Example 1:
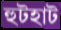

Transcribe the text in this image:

হুটহাট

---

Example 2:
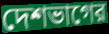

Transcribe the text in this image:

দেশভাগের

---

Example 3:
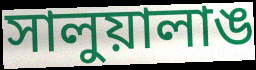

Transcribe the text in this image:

সালুয়ালাঙ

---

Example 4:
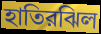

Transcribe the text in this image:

হাতিরঝিল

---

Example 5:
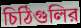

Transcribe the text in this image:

চিঠিগুলির